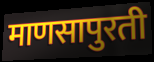
माणसापुरती